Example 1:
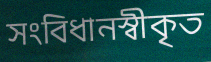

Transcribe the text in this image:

সংবিধানস্বীকৃত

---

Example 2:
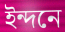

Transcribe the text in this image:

ইন্দনে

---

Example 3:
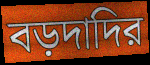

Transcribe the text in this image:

বড়দাদির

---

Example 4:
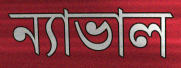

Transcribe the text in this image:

ন্যাভাল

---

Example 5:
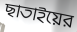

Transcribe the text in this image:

ছাতাইয়ের